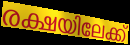
രക്ഷയിലേക്ക്